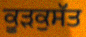
ਕੂੜਕੁਸੱਤ